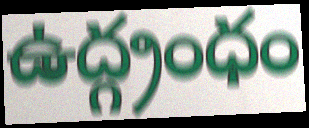
ఉద్గ్రంధం